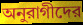
অনুরাগীদের